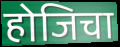
होजिचा